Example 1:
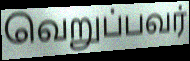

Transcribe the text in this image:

வெறுப்பவர்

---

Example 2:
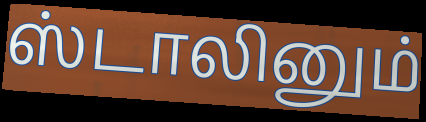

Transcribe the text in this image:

ஸ்டாலினும்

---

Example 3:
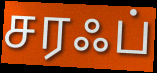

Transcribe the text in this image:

சரஃப்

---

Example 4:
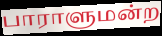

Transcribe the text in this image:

பாராளுமன்ற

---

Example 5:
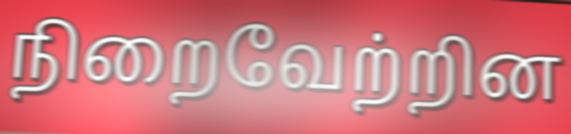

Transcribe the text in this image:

நிறைவேற்றின